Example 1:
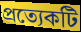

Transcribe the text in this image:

প্রত্যেকটি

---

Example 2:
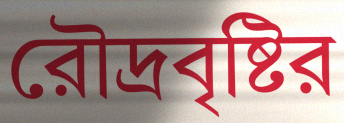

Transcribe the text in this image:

রৌদ্রবৃষ্টির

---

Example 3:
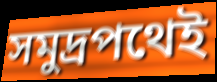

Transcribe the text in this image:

সমুদ্রপথেই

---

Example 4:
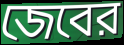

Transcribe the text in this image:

জেবের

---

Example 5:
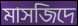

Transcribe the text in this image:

মাসজিদে